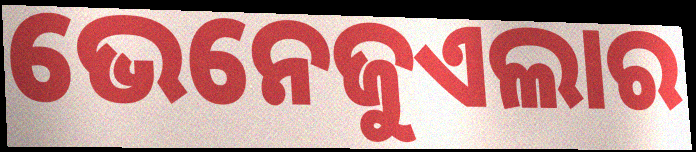
ଭେନେଜୁଏଲାର